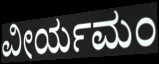
ವೀರ್ಯಮಂ